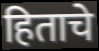
हिताचे